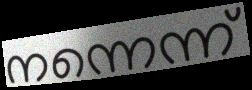
നന്നെന്ന്